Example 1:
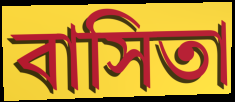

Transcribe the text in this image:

বাসিতা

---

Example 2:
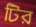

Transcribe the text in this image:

টির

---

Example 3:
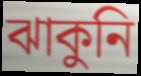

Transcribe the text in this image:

ঝাকুনি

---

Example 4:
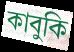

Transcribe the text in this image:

কাবুকি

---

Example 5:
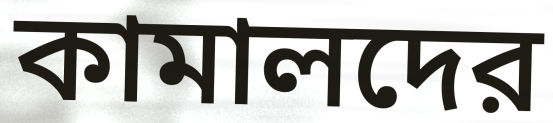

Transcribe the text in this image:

কামালদের